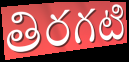
తిరగటి